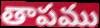
తాపము